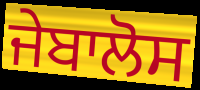
ਜੇਬਾਲੋਸ